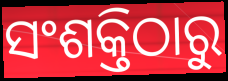
ସଂଶକ୍ତିଠାରୁ